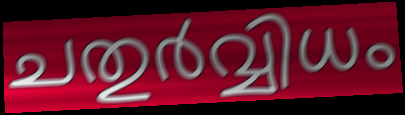
ചതുർവ്വിധം